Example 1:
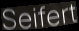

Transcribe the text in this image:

Seifert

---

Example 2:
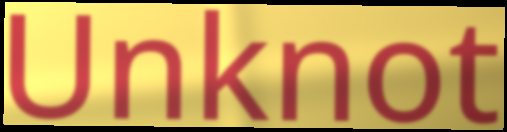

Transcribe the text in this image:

Unknot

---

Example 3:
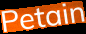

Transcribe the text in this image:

Petain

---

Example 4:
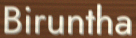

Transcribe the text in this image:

Biruntha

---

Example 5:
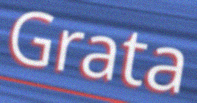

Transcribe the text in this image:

Grata